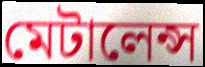
মেটালেন্স